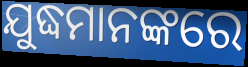
ଯୁଦ୍ଧମାନଙ୍କରେ